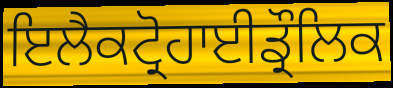
ਇਲੈਕਟ੍ਰੋਹਾਈਡ੍ਰੌਲਿਕ